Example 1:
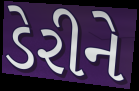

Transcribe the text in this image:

ડેરીને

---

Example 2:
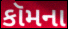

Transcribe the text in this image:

કૉમના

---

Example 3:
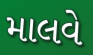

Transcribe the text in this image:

માલવે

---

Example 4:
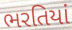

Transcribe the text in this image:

ભરતિયાં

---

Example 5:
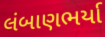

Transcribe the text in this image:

લંબાણભર્યા